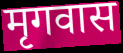
मृगवास